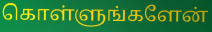
கொள்ளுங்களேன்